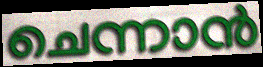
ചെന്നാൻ